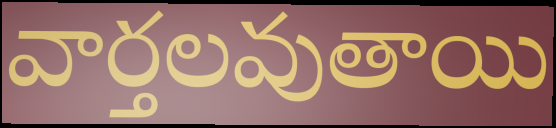
వార్తలవుతాయి